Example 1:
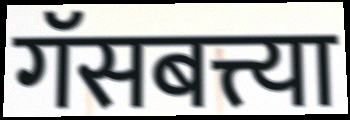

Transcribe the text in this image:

गॅसबत्त्या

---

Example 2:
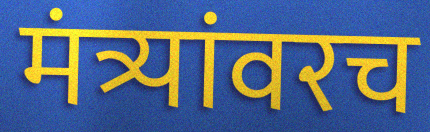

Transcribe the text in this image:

मंत्र्यांवरच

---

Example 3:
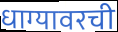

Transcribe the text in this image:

धाग्यावरची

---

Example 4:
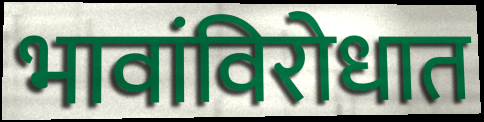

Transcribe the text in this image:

भावांविरोधात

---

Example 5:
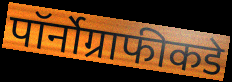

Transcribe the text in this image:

पॉर्नोग्राफीकडे